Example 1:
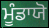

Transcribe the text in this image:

ਮੂੰਡਾਯੋ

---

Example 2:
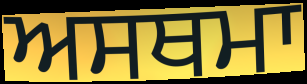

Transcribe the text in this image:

ਅਸਥਮਾ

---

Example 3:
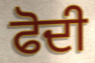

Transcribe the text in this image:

ਫੋਦੀ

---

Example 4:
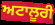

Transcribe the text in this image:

ਅਟਾਲੂਰੀ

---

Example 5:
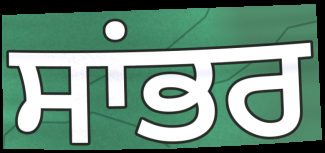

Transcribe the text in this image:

ਸਾਂਭਰ